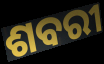
ଶବରୀ